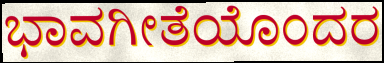
ಭಾವಗೀತೆಯೊಂದರ